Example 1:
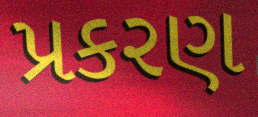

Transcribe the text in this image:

પ્રકરણ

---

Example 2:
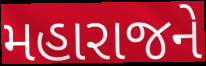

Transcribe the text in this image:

મહારાજને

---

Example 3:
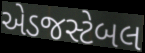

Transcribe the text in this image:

એડજસ્ટેબલ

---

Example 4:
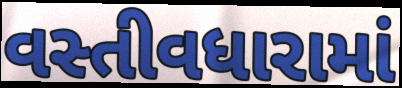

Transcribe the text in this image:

વસ્તીવધારામાં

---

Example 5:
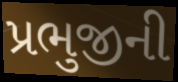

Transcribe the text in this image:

પ્રભુજીની